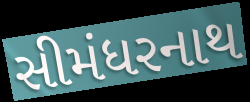
સીમંધરનાથ